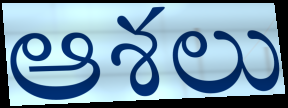
ఆశలు